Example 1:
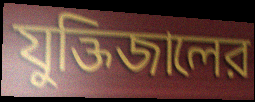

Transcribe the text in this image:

যুক্তিজালের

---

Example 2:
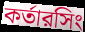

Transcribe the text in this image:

কর্তারসিং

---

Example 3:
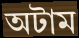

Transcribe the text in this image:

অটাম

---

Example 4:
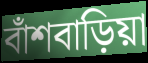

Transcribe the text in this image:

বাঁশবাড়িয়া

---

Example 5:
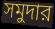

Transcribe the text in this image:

সমুদার